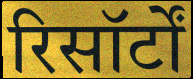
रिसॉर्टों